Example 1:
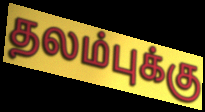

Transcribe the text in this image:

தலம்புக்கு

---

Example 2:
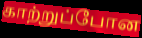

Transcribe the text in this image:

காற்றுப்போன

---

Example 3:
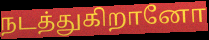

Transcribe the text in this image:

நடத்துகிறானோ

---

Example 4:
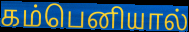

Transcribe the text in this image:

கம்பெனியால்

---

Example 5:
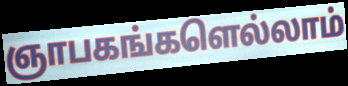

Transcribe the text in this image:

ஞாபகங்களெல்லாம்